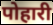
पोहारी